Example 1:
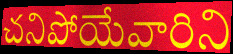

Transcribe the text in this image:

చనిపోయేవారిని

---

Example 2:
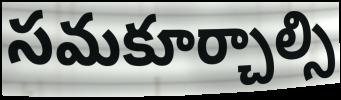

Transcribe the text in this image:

సమకూర్చాల్సి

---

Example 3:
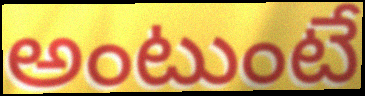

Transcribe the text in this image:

అంటుంటే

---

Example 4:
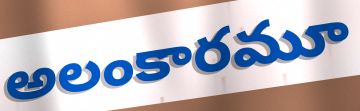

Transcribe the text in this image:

అలంకారమూ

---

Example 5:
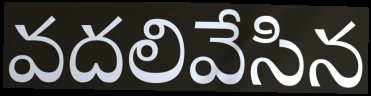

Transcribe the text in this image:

వదలివేసిన